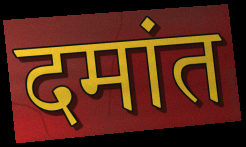
दमांत